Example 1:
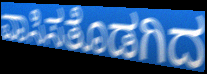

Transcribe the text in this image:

ವಾಸಿಸತೊಡಗಿದ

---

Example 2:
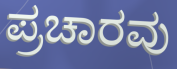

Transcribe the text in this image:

ಪ್ರಚಾರವು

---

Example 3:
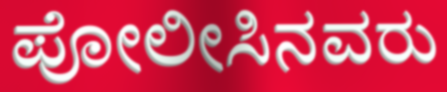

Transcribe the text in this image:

ಪೋಲೀಸಿನವರು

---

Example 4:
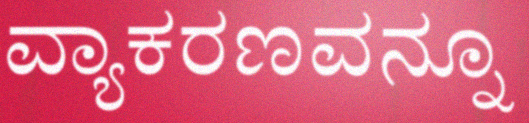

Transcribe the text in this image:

ವ್ಯಾಕರಣವನ್ನೂ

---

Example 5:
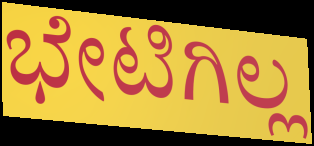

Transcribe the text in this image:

ಭೇಟಿಗಿಲ್ಲ